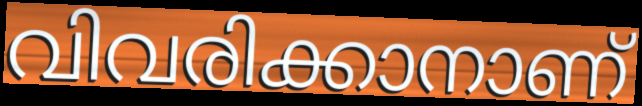
വിവരിക്കാനാണ്